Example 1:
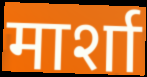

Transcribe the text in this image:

मार्शा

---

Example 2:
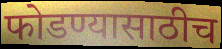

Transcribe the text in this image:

फोडण्यासाठीच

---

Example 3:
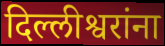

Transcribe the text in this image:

दिल्लीश्वरांना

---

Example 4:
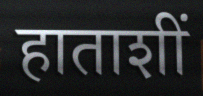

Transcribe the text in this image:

हाताशीं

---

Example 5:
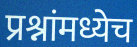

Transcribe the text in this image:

प्रश्नांमध्येच